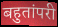
बहुतांपरी